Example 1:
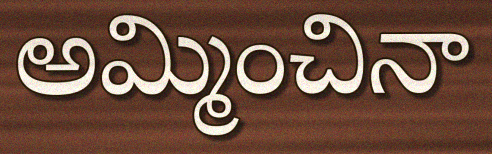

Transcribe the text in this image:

అమ్మించినా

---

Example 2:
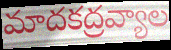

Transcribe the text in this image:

మాదకద్రవ్యాల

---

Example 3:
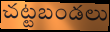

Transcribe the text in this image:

చట్టబండలు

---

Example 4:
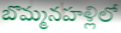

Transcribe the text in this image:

బొమ్మనహళ్లిలో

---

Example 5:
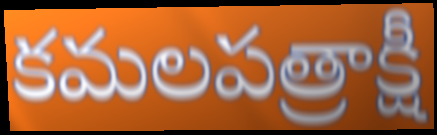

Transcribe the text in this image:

కమలపత్రాక్షీ